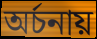
অর্চনায়